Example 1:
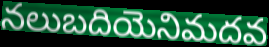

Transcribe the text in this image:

నలుబదియెనిమదవ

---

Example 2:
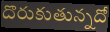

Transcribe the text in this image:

దొరుకుతున్నదో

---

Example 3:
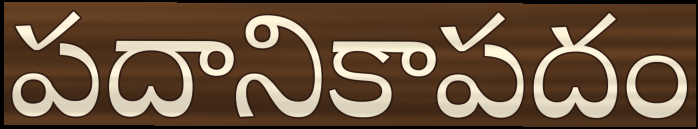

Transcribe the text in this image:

పదానికాపదం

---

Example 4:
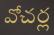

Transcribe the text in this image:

వోచర్ల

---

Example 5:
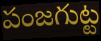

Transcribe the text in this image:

పంజగుట్ట